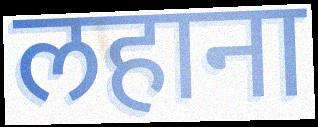
लहाना